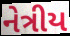
નેત્રીય